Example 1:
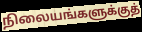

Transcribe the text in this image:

நிலையங்களுக்குத்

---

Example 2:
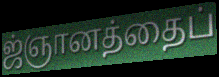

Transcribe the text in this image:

ஜ்ஞானத்தைப்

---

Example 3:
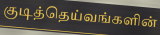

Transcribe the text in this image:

குடித்தெய்வங்களின்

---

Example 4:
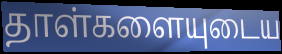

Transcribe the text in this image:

தாள்களையுடைய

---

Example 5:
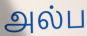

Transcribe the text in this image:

அல்ப